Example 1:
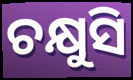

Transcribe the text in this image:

ଚକ୍ଷୁସି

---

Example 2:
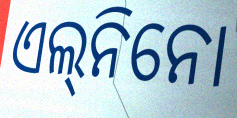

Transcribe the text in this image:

ଏଲ୍‌ନିନୋ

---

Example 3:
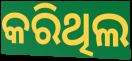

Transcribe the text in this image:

କରିଥିଲ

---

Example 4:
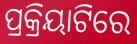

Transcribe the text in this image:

ପ୍ରକ୍ରିୟାଟିରେ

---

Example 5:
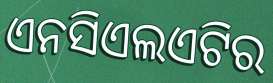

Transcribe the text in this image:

ଏନସିଏଲଏଟିର